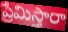
ప్రేమిస్తారా